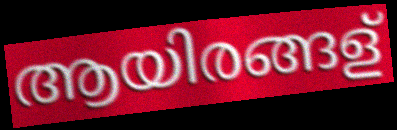
ആയിരങ്ങള്